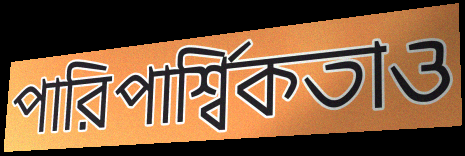
পারিপার্শ্বিকতাও